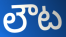
లౌట